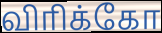
விரிக்கோ